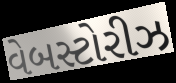
વેબસ્ટોરીઝ